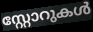
സ്റ്റോറുകൾ